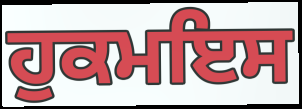
ਹੁਕਮਇਸ